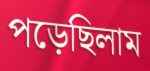
পড়েছিলাম